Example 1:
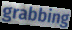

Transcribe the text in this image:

grabbing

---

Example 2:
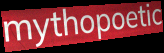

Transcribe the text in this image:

mythopoetic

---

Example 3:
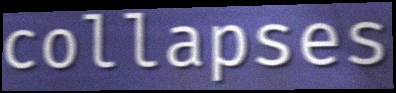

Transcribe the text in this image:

collapses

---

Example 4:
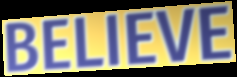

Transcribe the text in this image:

BELIEVE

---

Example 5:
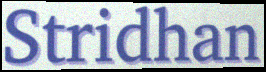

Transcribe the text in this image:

Stridhan